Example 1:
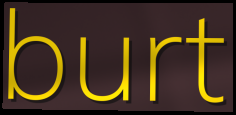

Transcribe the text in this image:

burt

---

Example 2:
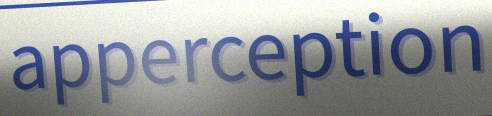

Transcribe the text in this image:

apperception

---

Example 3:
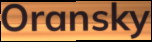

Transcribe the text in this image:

Oransky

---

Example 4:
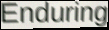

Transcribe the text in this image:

Enduring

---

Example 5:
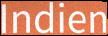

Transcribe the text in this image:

Indien